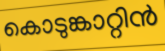
കൊടുങ്കാറ്റിൻ